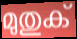
മുതുക്